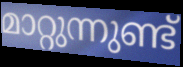
മാറ്റുന്നുണ്ട്